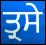
ਤ੍ਰਸੇ